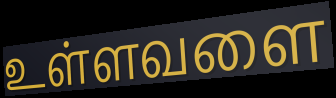
உள்ளவளை